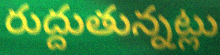
రుద్దుతున్నట్లు